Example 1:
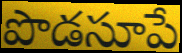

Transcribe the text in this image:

పొడసూపే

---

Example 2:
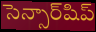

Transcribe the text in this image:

సెన్సార్‌షిప్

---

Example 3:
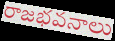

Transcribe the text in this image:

రాజభవనాలు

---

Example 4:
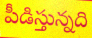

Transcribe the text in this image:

పీడిస్తున్నది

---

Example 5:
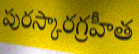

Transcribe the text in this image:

పురస్కారగ్రహీత